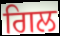
ਗਿਲ